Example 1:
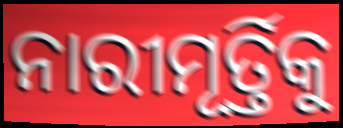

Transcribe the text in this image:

ନାରୀମୂର୍ତ୍ତିକୁ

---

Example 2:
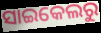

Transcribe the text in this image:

ସାଇକେଲରୁ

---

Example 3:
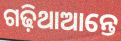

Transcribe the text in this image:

ଗଢ଼ିଥାଆନ୍ତେ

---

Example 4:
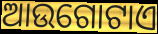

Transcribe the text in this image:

ଆଉଗୋଟାଏ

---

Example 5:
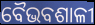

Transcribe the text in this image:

ବୈଭବଶାଳୀ